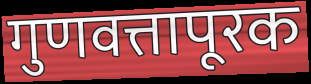
गुणवत्तापूरक